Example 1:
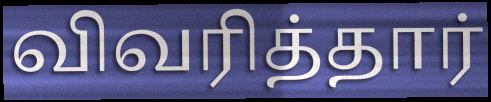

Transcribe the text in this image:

விவரித்தார்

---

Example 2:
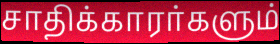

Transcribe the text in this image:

சாதிக்காரர்களும்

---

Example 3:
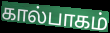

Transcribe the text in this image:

கால்பாகம்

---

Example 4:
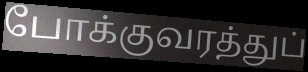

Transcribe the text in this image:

போக்குவரத்துப்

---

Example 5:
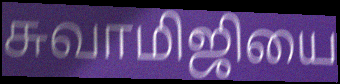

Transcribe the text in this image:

சுவாமிஜியை